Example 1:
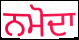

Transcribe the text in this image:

ਨਮੋਦਾ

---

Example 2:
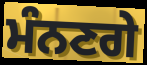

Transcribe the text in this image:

ਮੰਨਣਗੇ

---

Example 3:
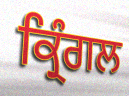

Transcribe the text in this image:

ਕ੍ਰਿੰਗਲ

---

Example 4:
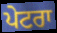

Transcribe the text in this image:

ਪੇਟਰਾ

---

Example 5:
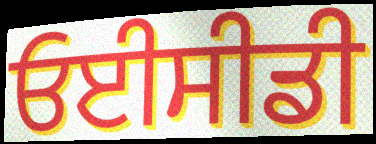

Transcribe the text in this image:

ਓਈਸੀਡੀ